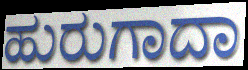
ಹುರುಗಾದಾ